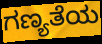
ಗಣ್ಯತೆಯ